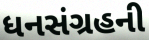
ધનસંગ્રહની